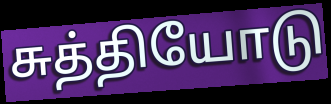
சுத்தியோடு